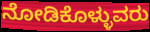
ನೋಡಿಕೊಳ್ಳುವರು